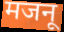
मजनू